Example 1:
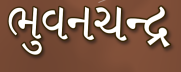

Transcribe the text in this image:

ભુવનચન્દ્ર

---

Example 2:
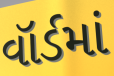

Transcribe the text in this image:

વૉર્ડમાં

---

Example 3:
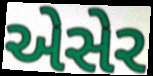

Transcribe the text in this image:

એસેર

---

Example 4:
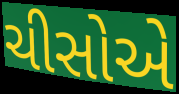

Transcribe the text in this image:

ચીસોએ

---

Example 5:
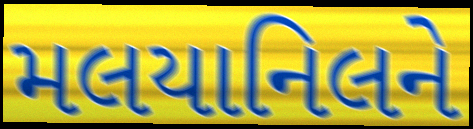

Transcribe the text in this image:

મલયાનિલને